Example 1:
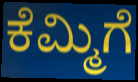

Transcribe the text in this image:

ಕೆಮ್ಮಿಗೆ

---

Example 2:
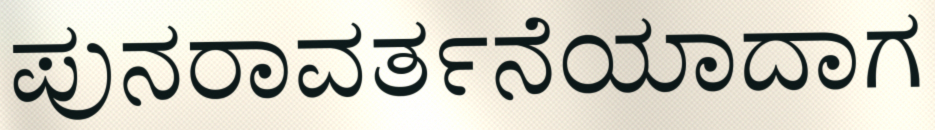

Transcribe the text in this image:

ಪುನರಾವರ್ತನೆಯಾದಾಗ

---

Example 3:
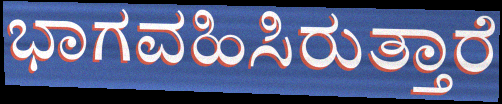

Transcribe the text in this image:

ಭಾಗವಹಿಸಿರುತ್ತಾರೆ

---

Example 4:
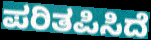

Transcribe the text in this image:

ಪರಿತಪಿಸಿದೆ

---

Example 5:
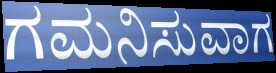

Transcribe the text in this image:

ಗಮನಿಸುವಾಗ